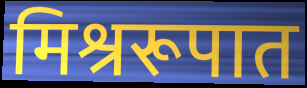
मिश्ररूपात